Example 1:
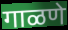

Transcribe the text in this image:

गाळणे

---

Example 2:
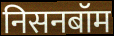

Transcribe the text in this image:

निसनबॉम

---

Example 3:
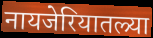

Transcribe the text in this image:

नायजेरियातल्या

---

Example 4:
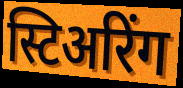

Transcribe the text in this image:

स्टिअरिंग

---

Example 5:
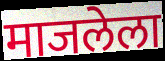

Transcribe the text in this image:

माजलेला